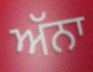
ਅੱਨਾ